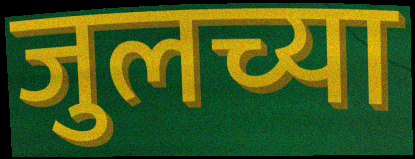
जुलच्या